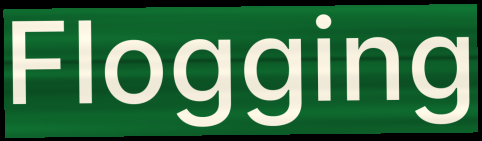
Flogging